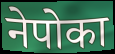
नेपोका